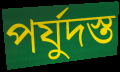
পর্যুদস্ত